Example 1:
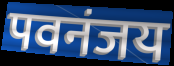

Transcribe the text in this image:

पवनंजय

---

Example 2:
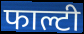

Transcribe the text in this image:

फाल्टी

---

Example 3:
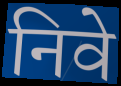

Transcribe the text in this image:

निवे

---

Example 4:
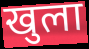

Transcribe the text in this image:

खुला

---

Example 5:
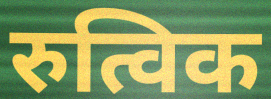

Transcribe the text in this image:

रुत्विक